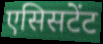
एसिसटेंट